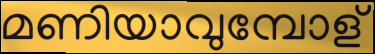
മണിയാവുമ്പോള്